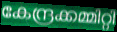
കേന്ദ്രക്കമ്മിറ്റി